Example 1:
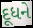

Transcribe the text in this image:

દૂધને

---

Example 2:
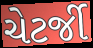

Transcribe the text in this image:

ચેટર્જી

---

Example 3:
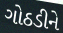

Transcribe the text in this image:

ગોઠડીને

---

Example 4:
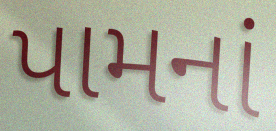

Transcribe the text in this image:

પામનાં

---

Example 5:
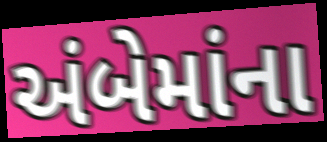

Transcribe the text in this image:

અંબેમાંના